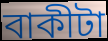
বাকীটা